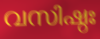
വസിഷ്ഠഃ